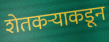
शेतकऱ्याकडून